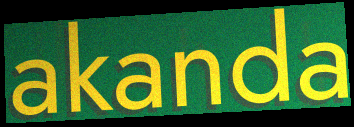
akanda